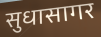
सुधासागर